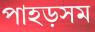
পাহড়সম